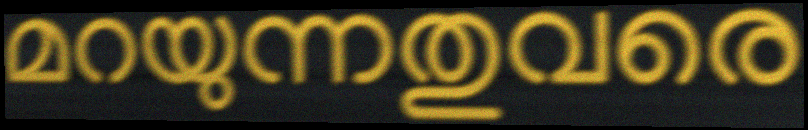
മറയുന്നതുവരെ